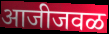
आजीजवळ